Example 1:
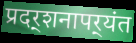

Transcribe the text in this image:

प्रदर्शनापर्यंत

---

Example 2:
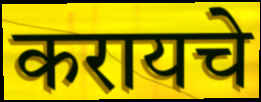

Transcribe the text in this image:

करायचे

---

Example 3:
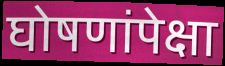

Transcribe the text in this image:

घोषणांपेक्षा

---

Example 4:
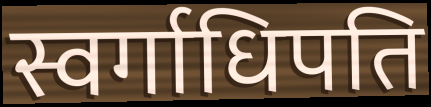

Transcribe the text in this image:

स्वर्गाधिपति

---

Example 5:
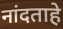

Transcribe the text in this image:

नांदताहे